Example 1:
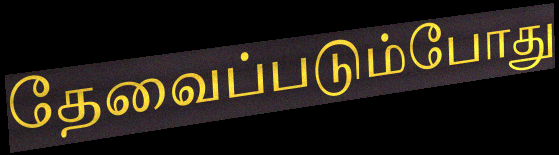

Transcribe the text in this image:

தேவைப்படும்போது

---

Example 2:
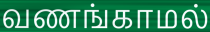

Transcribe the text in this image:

வணங்காமல்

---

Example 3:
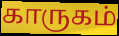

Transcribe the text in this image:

காருகம்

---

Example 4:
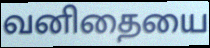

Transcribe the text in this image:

வனிதையை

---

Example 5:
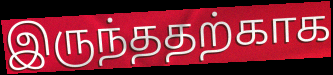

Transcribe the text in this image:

இருந்ததற்காக